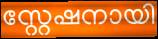
സ്റ്റേഷനായി